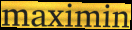
maximin